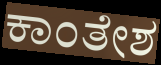
ಕಾಂತೇಶ